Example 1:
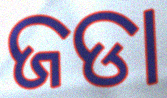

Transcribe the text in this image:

ଜଡା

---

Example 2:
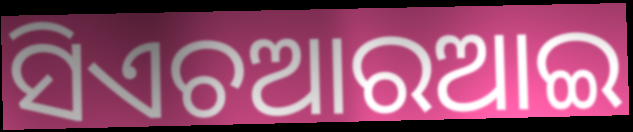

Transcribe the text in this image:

ସିଏଚଆରଆଇ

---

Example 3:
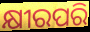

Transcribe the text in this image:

କ୍ଷୀରପରି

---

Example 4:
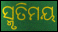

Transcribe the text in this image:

ସ୍ମୃତିମୟ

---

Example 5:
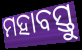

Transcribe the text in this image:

ମହାବସ୍ତୁ